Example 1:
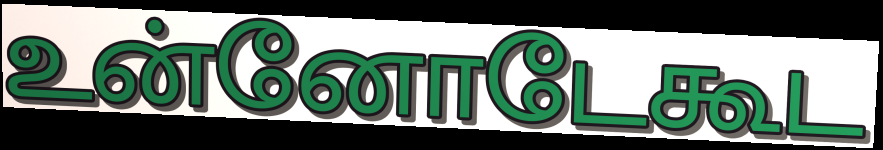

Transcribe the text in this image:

உன்னோடேகூட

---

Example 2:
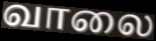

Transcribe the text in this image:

வாலை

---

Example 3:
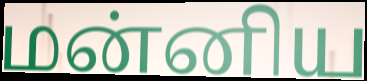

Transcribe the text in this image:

மன்னிய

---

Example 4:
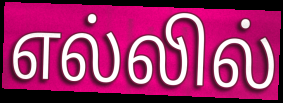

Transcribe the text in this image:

எல்லில்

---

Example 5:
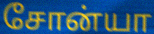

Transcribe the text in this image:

சோன்யா